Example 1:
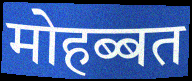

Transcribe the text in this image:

मोहब्बत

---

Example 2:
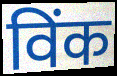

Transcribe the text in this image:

विंक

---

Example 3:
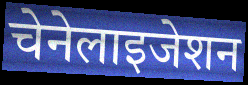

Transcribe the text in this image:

चेनेलाइजेशन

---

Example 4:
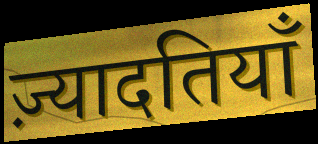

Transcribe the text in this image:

ज़्यादतियाँ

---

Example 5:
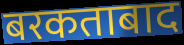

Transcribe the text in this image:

बरकताबाद